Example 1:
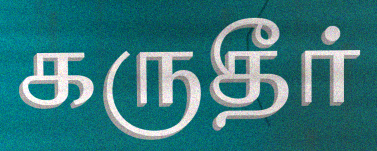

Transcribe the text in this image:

கருதீர்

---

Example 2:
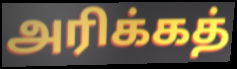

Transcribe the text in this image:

அரிக்கத்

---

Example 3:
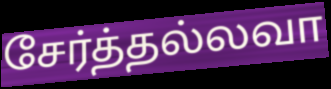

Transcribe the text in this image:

சேர்த்தல்லவா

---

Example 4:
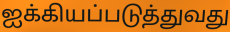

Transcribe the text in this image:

ஐக்கியப்படுத்துவது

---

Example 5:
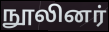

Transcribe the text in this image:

நூலினர்